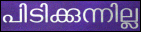
പിടിക്കുന്നില്ല